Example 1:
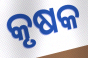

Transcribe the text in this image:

କୃଷକ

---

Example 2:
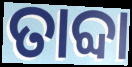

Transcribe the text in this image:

ତାବ୍ଦା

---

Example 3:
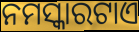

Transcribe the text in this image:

ନମସ୍କାରଟାଏ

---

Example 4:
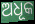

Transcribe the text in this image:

ଅଧୂକ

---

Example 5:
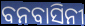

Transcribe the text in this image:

ବନବାସିନୀ